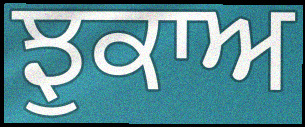
ਝੁਕਾਅ